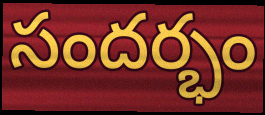
సందర్భం